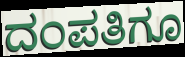
ದಂಪತಿಗೂ